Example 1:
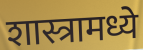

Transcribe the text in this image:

शास्त्रामध्ये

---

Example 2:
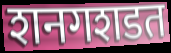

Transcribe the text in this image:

शनगशडत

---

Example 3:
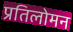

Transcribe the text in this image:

प्रतिलोमन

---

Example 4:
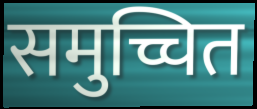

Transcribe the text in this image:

समुच्चित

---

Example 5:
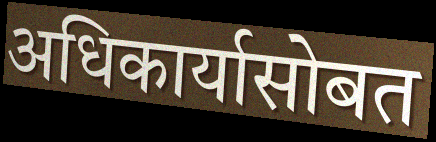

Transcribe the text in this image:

अधिकार्यासोबत